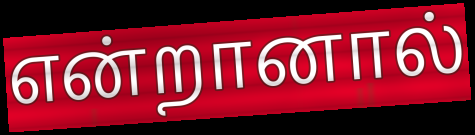
என்றானால்